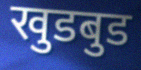
खुडबुड